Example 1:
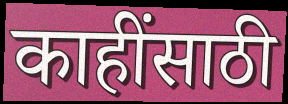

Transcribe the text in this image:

काहींसाठी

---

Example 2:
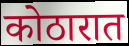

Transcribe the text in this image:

कोठारात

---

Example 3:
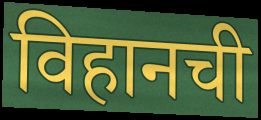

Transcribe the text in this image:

विहानची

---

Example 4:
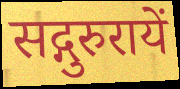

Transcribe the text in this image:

सद्गुरुरायें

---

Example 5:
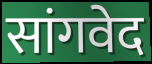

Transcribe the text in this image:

सांगवेद